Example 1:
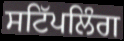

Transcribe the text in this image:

ਸਟਿੱਪਲਿੰਗ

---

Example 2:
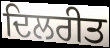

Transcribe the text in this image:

ਦਿਲਰੀਤ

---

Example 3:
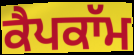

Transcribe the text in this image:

ਕੈਪਕਾੱਮ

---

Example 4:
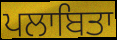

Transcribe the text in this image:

ਪਲਾਬਿਤਾ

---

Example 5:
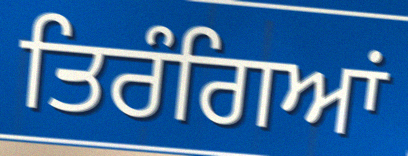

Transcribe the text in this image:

ਤਿਰੰਗਿਆਂ